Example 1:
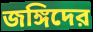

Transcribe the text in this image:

জঙ্গিদের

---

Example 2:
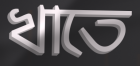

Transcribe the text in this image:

খাতে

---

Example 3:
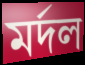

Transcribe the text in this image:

মর্দল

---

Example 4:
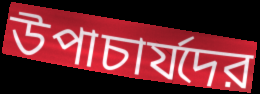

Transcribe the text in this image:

উপাচার্যদের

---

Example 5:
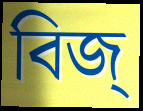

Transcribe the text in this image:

বিজ্